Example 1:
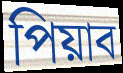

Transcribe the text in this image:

পিয়াব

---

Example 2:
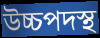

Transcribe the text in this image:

উচ্চপদস্থ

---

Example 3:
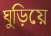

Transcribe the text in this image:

ঘুড়িয়ে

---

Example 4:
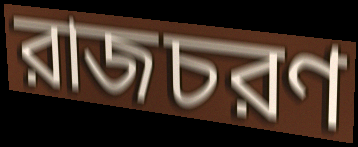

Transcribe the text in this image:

রাজচরণ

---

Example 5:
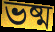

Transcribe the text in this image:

ভষ্ম